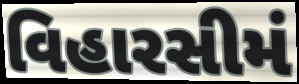
વિહારસીમં